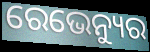
ରେଭେନ୍ୟୁର